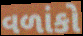
વળાંકો